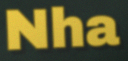
Nha